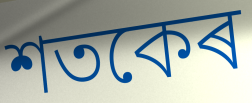
শতকেৰ